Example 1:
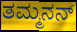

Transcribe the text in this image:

ತಮ್ಮನನ್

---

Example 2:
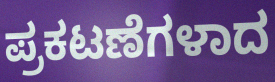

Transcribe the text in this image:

ಪ್ರಕಟಣೆಗಳಾದ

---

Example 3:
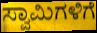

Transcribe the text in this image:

ಸ್ವಾಮಿಗಳಿಗೆ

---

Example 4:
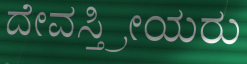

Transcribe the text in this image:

ದೇವಸ್ತ್ರೀಯರು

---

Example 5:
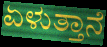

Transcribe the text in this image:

ಏಳುತ್ತಾನೆ